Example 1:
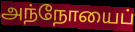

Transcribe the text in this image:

அந்நோயைப்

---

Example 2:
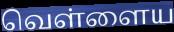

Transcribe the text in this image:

வெள்ளைய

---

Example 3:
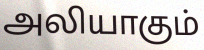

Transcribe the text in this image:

அலியாகும்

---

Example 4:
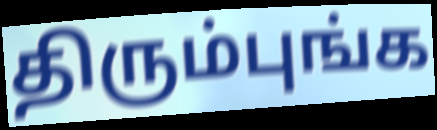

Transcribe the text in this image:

திரும்புங்க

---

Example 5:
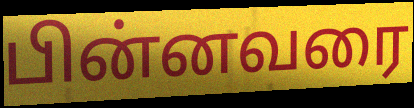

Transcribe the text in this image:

பின்னவரை